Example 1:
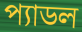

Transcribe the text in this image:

প্যাডল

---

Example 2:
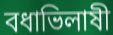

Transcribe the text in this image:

বধাভিলাষী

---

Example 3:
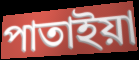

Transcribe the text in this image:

পাতাইয়া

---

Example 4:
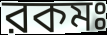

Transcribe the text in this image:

রকমঃ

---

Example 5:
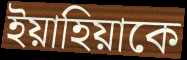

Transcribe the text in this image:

ইয়াহিয়াকে